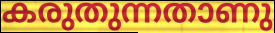
കരുതുന്നതാണു